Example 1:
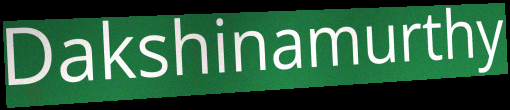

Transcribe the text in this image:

Dakshinamurthy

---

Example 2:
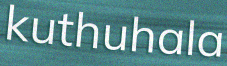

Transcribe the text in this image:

kuthuhala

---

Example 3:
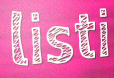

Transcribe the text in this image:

listi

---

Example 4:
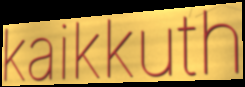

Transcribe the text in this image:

kaikkuth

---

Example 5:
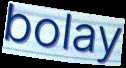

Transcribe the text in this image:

bolay